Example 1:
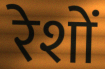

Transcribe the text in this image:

रेशों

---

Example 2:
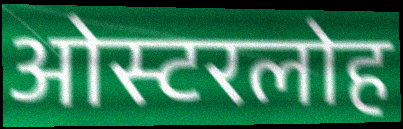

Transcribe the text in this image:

ओस्टरलोह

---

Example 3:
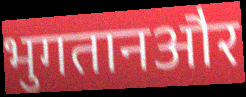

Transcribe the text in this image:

भुगतानऔर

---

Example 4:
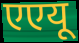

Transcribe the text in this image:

एएयू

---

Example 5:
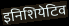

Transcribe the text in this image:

इनिशियेटिव